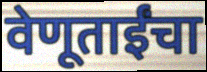
वेणूताईंचा